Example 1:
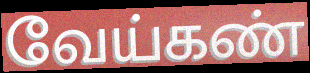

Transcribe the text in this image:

வேய்கண்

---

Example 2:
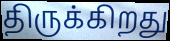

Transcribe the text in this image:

திருக்கிறது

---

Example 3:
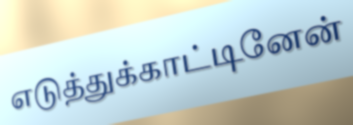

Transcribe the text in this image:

எடுத்துக்காட்டினேன்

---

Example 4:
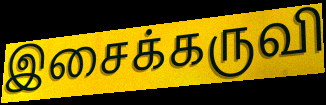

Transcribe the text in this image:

இசைக்கருவி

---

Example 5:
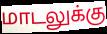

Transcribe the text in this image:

மாடலுக்கு